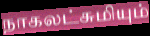
நாகலட்சுமியும்